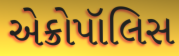
એક્રોપૉલિસ